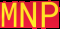
MNP